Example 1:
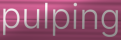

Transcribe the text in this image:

pulping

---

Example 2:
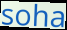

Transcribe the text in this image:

soha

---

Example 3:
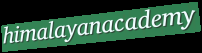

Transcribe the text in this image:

himalayanacademy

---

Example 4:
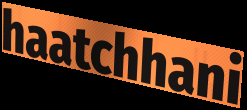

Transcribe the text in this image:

haatchhani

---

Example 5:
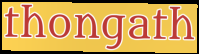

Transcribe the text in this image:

thongath